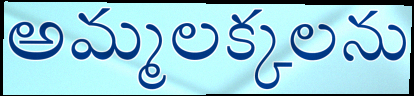
అమ్మలక్కలను